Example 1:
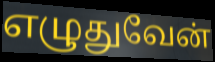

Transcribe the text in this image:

எழுதுவேன்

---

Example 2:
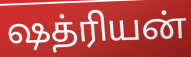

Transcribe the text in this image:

ஷத்ரியன்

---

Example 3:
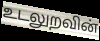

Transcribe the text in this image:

உடலுறவின்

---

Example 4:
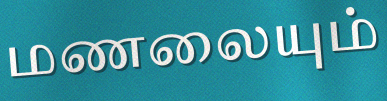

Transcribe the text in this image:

மணலையும்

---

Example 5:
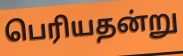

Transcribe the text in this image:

பெரியதன்று